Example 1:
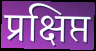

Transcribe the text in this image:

प्रक्षिप्त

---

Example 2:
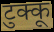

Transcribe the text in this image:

टुक्कू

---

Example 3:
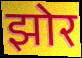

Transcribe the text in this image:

झोर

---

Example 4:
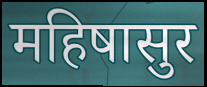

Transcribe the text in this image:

महिषासुर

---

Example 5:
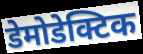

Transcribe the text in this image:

डेमोडेक्टिक